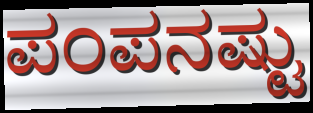
ಪಂಪನಷ್ಟು